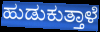
ಹುಡುಕುತ್ತಾಳೆ